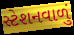
સ્ટેશનવાળું